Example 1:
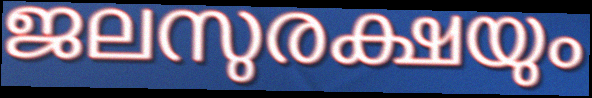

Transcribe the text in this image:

ജലസുരക്ഷയും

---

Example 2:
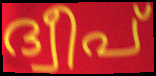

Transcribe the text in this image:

ദ്വീപ്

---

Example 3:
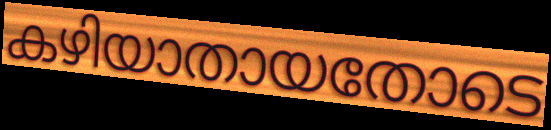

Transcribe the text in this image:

കഴിയാതായതോടെ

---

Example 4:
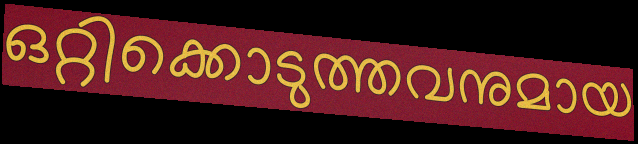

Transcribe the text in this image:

ഒറ്റിക്കൊടുത്തവനുമായ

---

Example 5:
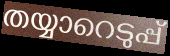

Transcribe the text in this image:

തയ്യാറെടുപ്പ്